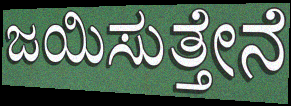
ಜಯಿಸುತ್ತೇನೆ